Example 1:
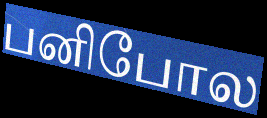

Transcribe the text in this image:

பனிபோல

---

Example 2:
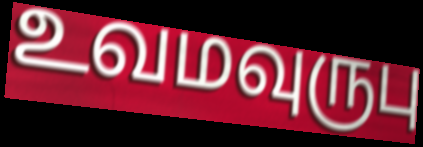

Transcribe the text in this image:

உவமவுருபு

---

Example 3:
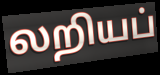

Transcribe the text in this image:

லறியப்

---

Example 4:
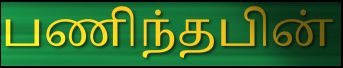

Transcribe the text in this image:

பணிந்தபின்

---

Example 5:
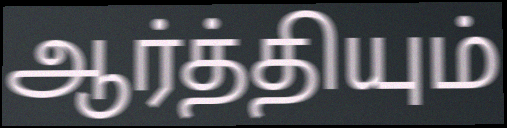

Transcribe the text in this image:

ஆர்த்தியும்